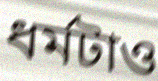
ধর্মটাও